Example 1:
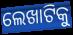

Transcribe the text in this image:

ଲେଖାଟିକୁ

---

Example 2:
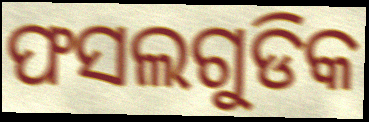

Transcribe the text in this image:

ଫସଲଗୁଡିକ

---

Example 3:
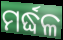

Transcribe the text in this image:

ମର୍ଦ୍ଧଳ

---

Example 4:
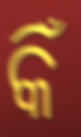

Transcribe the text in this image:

କିଁ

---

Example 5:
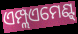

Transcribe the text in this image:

ଏମ୍ପ୍ଲଏମେଣ୍ଟ୍